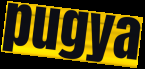
pugya